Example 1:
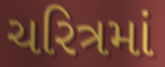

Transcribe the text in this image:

ચરિત્રમાં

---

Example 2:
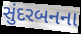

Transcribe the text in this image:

સુંદરબનના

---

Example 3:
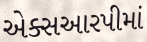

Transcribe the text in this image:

એક્સઆરપીમાં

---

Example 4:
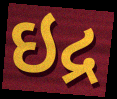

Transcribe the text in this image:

ઇદ્ર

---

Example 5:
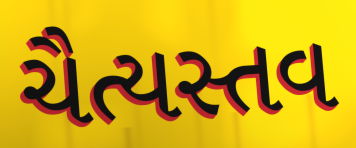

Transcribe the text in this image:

ચૈત્યસ્તવ